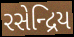
રસેન્દ્રિય